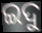
ଇଦୁ